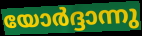
യോർദ്ദാന്നു